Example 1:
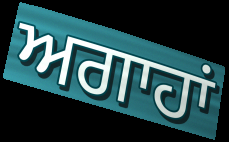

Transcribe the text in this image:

ਅਗਾਹਾਂ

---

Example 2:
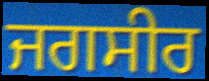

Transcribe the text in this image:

ਜਗਸੀਰ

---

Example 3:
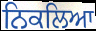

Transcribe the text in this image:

ਨਿਕਲਿਆ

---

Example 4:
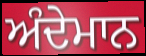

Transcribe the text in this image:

ਅੰਦੇਮਾਨ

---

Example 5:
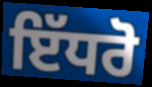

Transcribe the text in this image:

ਇੱਧਰੋ